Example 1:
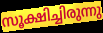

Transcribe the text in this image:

സൂക്ഷിച്ചിരുന്നു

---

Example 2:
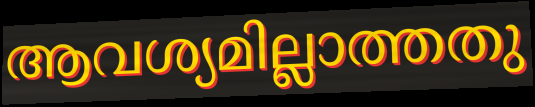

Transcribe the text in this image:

ആവശ്യമില്ലാത്തതു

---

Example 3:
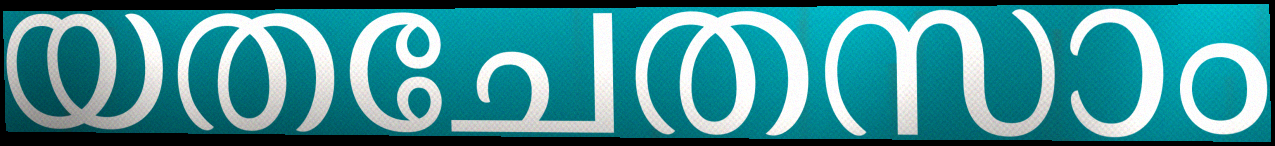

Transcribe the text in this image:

യതചേതസാം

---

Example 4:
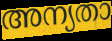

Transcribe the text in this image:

അന്യതാ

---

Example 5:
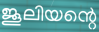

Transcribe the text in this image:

ജൂലിയന്റെ